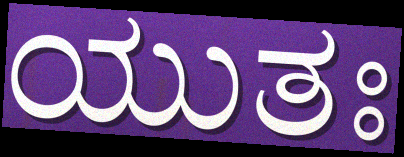
ಯುತಃ